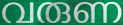
വരുണ